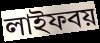
লাইফবয়